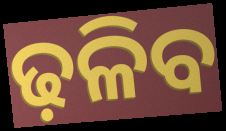
ଢ଼ଳିବ